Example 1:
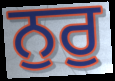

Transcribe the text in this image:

ਨੁਰੁ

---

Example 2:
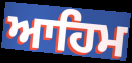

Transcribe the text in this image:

ਆਹਿਮ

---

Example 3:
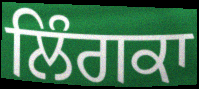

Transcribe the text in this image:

ਲਿੰਗਕਾ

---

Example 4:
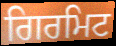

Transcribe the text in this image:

ਗਿਰਮਿਟ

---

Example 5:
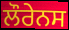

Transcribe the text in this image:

ਲੌਰੇਨਸ